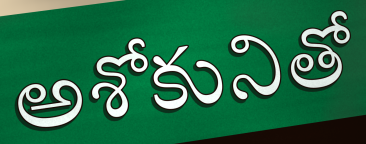
అశోకునితో